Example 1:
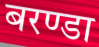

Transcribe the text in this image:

बरण्डा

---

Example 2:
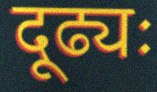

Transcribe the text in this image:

दूढ्यः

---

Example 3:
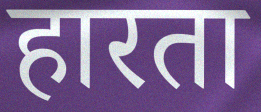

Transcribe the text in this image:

हारता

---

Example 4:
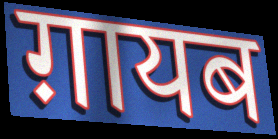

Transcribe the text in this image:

ग़ायब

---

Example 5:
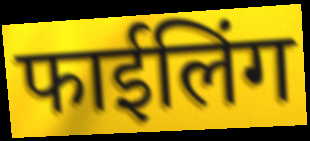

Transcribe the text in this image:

फाईलिंग